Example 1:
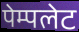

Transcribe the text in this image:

पेम्पलेट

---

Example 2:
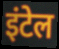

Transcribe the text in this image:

इंटेल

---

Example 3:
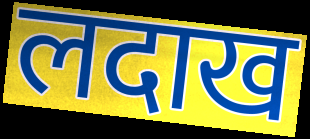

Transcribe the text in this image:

लदाख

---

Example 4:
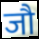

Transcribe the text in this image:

जौ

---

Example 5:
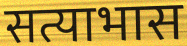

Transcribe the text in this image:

सत्याभास